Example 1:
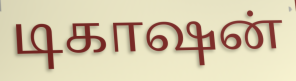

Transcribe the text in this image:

டிகாஷன்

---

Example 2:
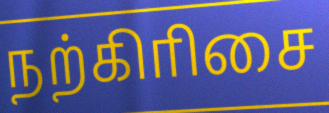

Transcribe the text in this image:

நற்கிரிசை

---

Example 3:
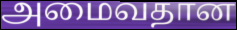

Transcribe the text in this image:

அமைவதான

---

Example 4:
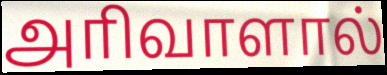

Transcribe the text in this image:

அரிவாளால்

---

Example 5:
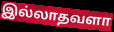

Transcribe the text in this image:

இல்லாதவளா